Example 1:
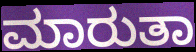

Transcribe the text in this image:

ಮಾರುತಾ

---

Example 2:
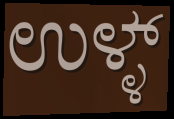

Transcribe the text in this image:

ಉಳ್ಳ್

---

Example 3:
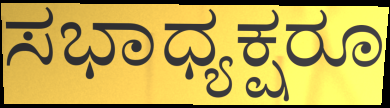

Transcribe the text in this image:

ಸಭಾಧ್ಯಕ್ಷರೂ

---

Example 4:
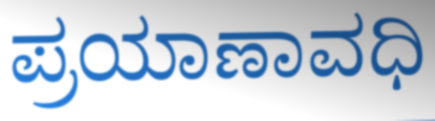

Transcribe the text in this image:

ಪ್ರಯಾಣಾವಧಿ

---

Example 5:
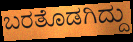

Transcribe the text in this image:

ಬರತೊಡಗಿದ್ದು